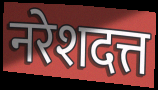
नरेशदत्त